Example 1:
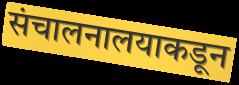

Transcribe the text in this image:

संचालनालयाकडून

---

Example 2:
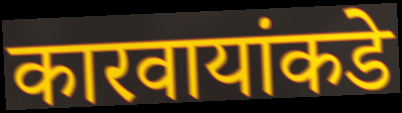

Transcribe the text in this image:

कारवायांकडे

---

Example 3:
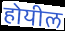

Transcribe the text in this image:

होयील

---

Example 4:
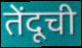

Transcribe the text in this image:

तेंदूची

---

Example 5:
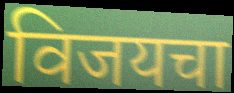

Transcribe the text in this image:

विजयचा